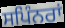
ਸਪਿੰਨਰਾਂ